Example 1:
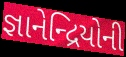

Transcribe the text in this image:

જ્ઞાનેન્દ્રિયોની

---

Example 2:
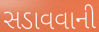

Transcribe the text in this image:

સડાવવાની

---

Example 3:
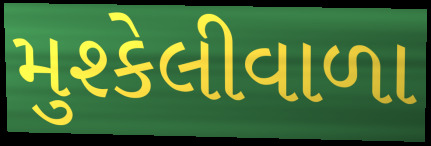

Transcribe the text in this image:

મુશ્કેલીવાળા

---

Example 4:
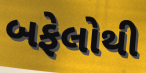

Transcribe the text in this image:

બફેલોથી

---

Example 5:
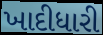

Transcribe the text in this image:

ખાદીધારી